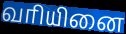
வரியினை